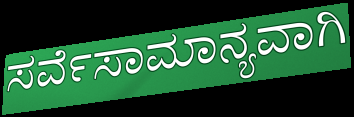
ಸರ್ವೆಸಾಮಾನ್ಯವಾಗಿ